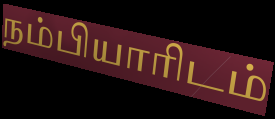
நம்பியாரிடம்